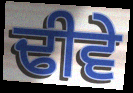
ਢੀਵੇ